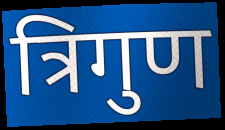
त्रिगुण